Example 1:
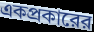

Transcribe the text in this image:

একপ্রকারের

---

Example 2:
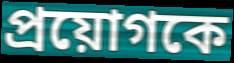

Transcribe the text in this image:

প্রয়োগকে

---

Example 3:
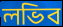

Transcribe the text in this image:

লভিব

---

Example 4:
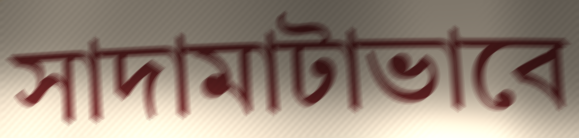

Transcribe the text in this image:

সাদামাটাভাবে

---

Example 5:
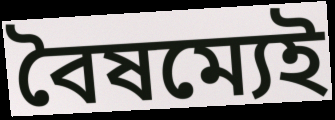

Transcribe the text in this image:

বৈষম্যেই